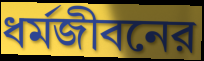
ধর্মজীবনের